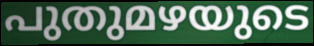
പുതുമഴയുടെ